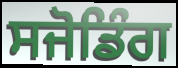
ਸਜੋਡਿੰਗ